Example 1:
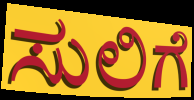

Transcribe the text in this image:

ಸುಲಿಗೆ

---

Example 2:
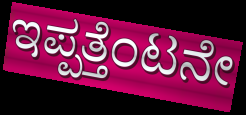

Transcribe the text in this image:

ಇಪ್ಪತ್ತೆಂಟನೇ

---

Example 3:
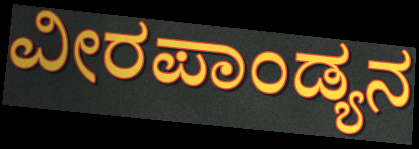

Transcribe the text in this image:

ವೀರಪಾಂಡ್ಯನ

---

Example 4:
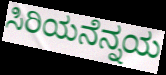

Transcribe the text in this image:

ಸಿರಿಯನೆನ್ನಯ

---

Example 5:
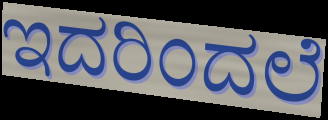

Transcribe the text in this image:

ಇದರಿಂದಲೆ